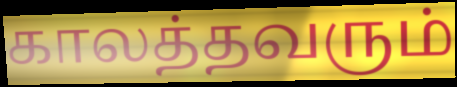
காலத்தவரும்